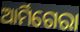
ଆର୍ମିଗେରା